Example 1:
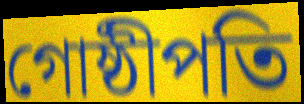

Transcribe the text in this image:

গোষ্ঠীপতি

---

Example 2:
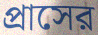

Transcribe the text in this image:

প্রাসের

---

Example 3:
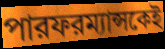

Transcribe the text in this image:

পারফরম্যান্সকেই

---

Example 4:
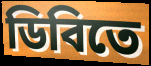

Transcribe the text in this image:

ডিবিতে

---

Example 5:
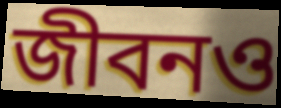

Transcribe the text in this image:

জীবনও